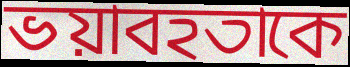
ভয়াবহতাকে